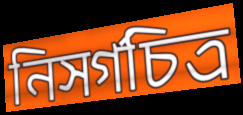
নিসর্গচিত্র